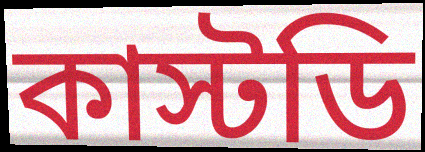
কাস্টডি